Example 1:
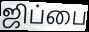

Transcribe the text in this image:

ஜிப்பை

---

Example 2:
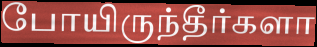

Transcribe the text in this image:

போயிருந்தீர்களா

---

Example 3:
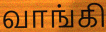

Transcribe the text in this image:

வாங்கி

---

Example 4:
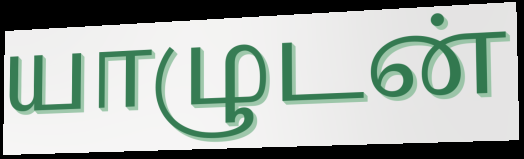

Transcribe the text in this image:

யாழுடன்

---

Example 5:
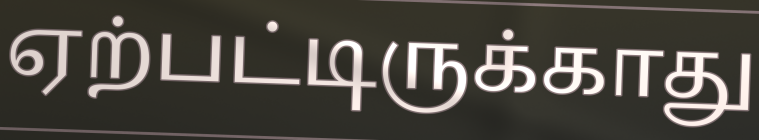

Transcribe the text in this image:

ஏற்பட்டிருக்காது